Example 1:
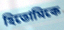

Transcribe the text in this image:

হিতোমিকে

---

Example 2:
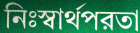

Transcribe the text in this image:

নিঃস্বার্থপরতা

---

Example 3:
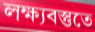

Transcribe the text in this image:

লক্ষ্যবস্তুতে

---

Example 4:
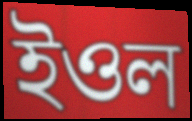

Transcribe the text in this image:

ইওল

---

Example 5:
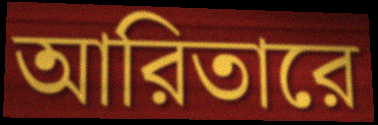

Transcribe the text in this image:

আরিতারে